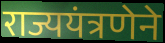
राज्ययंत्रणेने